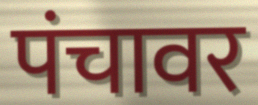
पंचावर